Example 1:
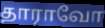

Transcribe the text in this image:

தாராவோ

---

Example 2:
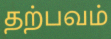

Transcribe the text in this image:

தற்பவம்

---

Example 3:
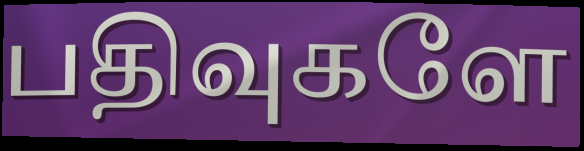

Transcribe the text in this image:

பதிவுகளே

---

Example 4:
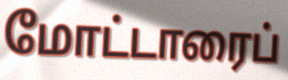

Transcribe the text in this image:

மோட்டாரைப்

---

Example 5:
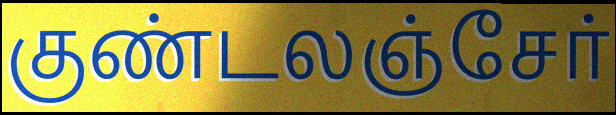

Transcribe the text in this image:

குண்டலஞ்சேர்